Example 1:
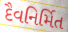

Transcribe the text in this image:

દૈવનિર્મિત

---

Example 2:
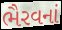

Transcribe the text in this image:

ભૈરવનાં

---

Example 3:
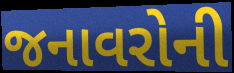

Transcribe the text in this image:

જનાવરોની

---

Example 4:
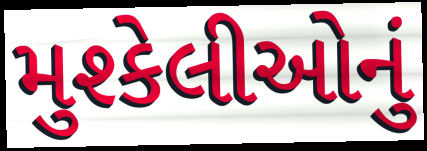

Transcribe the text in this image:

મુશ્કેલીઓનું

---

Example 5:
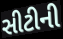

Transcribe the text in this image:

સીટીની